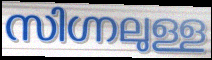
സിഗ്നലുള്ള